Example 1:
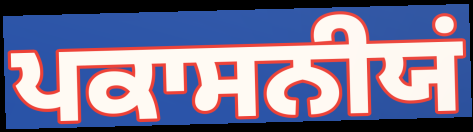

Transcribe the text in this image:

ਪਕਾਸਨੀਯਂ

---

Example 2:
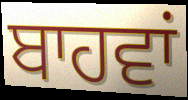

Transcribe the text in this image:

ਬਾਹਵਾਂ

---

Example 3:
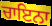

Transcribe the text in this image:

ਚਾਇਨਾ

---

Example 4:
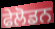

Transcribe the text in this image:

ਫੇਲੋਡਨ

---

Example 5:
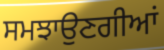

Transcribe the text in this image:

ਸਮਝਾਉਣਗੀਆਂ